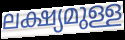
ലക്ഷ്യമുള്ള